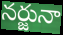
నర్జునా